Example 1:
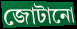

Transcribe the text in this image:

জোটানো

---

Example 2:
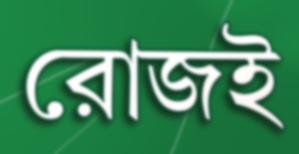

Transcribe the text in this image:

রোজই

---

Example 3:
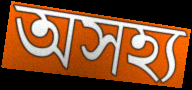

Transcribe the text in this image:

অসহ্য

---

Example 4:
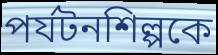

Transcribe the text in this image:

পর্যটনশিল্পকে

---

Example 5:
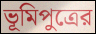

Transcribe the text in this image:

ভূমিপুত্রের